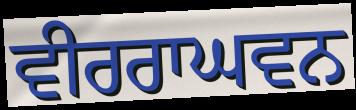
ਵੀਰਰਾਘਵਨ